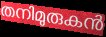
തനിമുരുകൻ